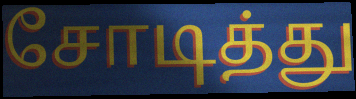
சோடித்து